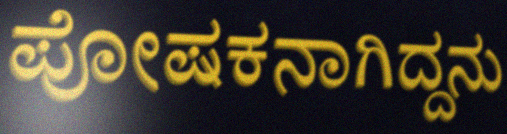
ಪೋಷಕನಾಗಿದ್ದನು